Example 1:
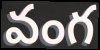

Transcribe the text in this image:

వంగ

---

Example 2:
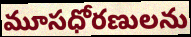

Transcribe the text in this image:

మూసధోరణులను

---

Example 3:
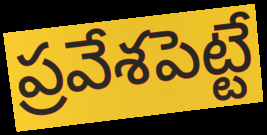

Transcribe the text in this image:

ప్రవేశపెట్టే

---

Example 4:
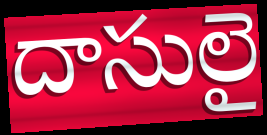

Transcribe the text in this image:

దాసులై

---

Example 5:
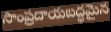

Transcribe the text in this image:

సాంప్రదాయబద్ధమైన